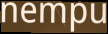
nempu